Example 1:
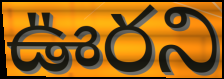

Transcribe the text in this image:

ఊరని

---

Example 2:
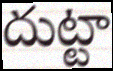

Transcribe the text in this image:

దుట్టా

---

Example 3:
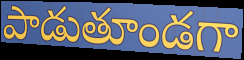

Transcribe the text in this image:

పాడుతూండగా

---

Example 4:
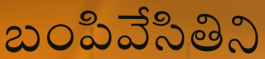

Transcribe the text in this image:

బంపివేసితిని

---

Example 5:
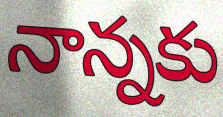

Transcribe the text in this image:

నాన్నకు